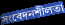
সংবেদনশীলতা